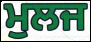
ਮੁਲਜ